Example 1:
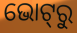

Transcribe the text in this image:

ଭୋଟ୍‌ରୁ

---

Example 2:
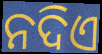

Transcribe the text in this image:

ନଦିଏ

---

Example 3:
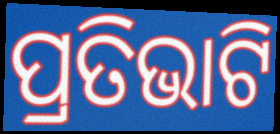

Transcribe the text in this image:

ପ୍ରତିଭାଟି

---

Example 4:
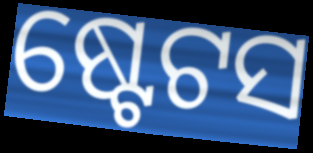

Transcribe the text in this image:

ଷ୍ଟେଟସ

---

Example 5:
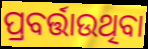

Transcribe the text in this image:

ପ୍ରବର୍ତ୍ତାଉଥିବା